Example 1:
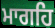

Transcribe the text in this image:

ਮਾਗਹਿ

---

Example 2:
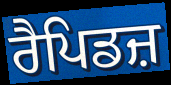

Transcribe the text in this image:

ਰੈਪਿਡਜ਼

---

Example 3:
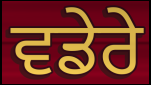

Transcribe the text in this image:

ਵਡੇਰੇ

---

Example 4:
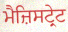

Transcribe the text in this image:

ਮੈਜ਼ਿਸਟ੍ਰੇਟ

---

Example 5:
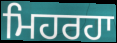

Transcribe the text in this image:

ਮਿਹਰਹਾ